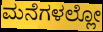
ಮನೆಗಳಲ್ಲೋ